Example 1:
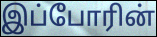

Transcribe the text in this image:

இப்போரின்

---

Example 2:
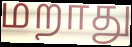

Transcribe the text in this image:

மறாது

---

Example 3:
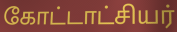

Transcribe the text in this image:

கோட்டாட்சியர்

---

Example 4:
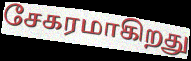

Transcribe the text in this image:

சேகரமாகிறது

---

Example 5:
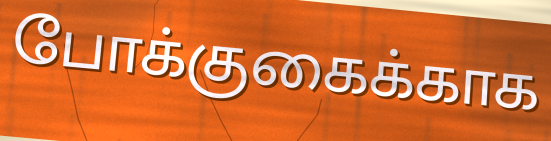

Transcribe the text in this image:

போக்குகைக்காக